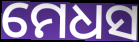
ମେଧସ